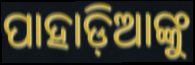
ପାହାଡ଼ିଆଙ୍କୁ